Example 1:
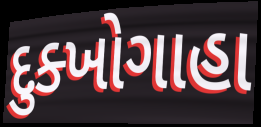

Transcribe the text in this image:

દુક્ખોગાહા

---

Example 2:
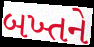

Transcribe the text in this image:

બખ્તને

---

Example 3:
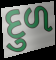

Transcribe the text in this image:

દુળ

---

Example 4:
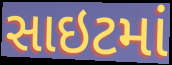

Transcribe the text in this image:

સાઇટમાં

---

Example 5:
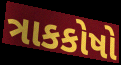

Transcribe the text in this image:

ત્રાકકોષો